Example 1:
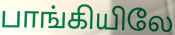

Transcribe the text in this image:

பாங்கியிலே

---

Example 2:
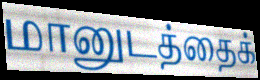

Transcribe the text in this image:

மானுடத்தைக்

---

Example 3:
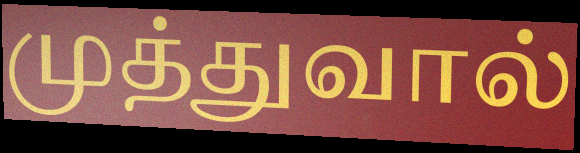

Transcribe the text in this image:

முத்துவால்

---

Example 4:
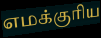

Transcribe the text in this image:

எமக்குரிய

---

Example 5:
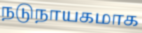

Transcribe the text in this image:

நடுநாயகமாக